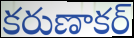
కరుణాకర్